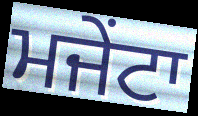
ਮਜੇਂਟਾ